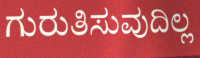
ಗುರುತಿಸುವುದಿಲ್ಲ